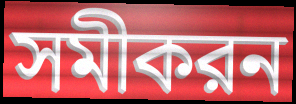
সমীকরন